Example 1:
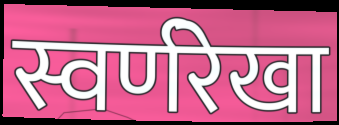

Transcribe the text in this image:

स्वर्णरेखा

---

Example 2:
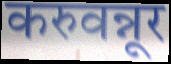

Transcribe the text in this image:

करुवन्नूर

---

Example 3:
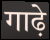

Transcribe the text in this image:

गाढ़े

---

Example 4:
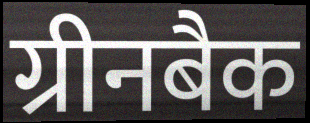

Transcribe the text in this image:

ग्रीनबैक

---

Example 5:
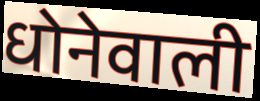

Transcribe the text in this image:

धोनेवाली